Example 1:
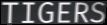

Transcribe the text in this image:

TIGERS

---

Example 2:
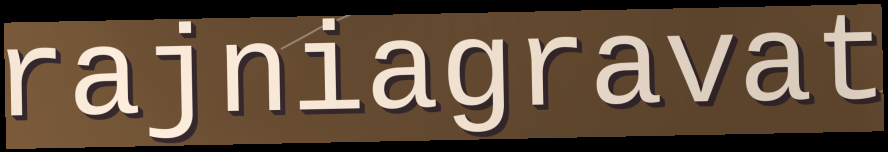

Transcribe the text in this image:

rajniagravat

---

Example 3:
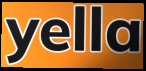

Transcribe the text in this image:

yella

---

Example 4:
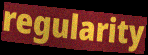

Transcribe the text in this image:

regularity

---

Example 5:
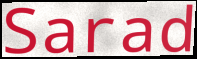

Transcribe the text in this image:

Sarad